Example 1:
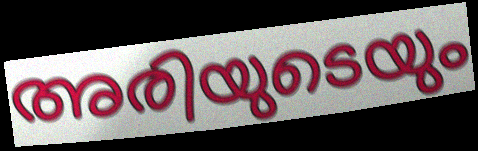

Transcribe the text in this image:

അരിയുടെയും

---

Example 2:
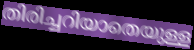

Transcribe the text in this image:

തിരിച്ചറിയാതെയുള്ള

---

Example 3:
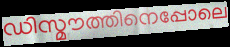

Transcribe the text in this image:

ഡിസ്മൗത്തിനെപ്പോലെ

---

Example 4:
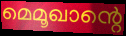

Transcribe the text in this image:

മെമൂഖാന്റെ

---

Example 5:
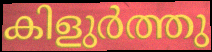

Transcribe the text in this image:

കിളുർത്തു